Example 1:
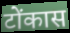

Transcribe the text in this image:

टोंकास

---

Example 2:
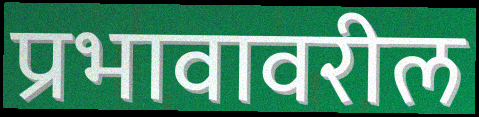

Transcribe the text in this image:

प्रभावावरील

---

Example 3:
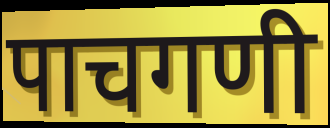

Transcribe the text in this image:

पाचगणी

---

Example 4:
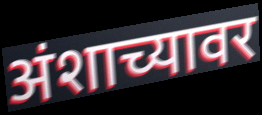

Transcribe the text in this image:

अंशाच्यावर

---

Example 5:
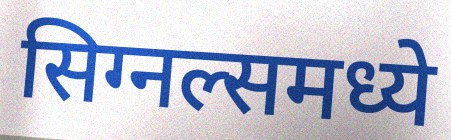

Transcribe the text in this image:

सिग्नल्समध्ये